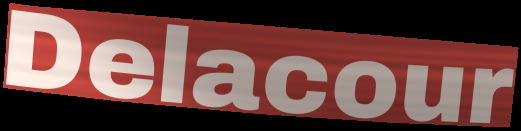
Delacour